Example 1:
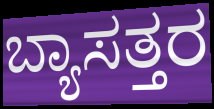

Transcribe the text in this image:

ಬ್ಯಾಸತ್ತರ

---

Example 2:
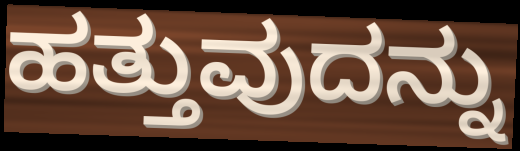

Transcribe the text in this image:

ಹತ್ತುವುದನ್ನು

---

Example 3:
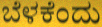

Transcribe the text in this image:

ಬೆಳಕೆಂದು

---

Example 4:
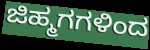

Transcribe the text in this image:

ಜಿಹ್ಮಗಗಳಿಂದ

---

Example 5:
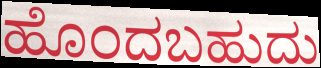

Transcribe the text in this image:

ಹೊಂದಬಹುದು